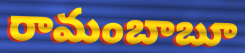
రామంబాబూ